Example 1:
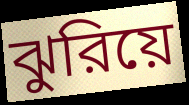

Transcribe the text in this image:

ঝুরিয়ে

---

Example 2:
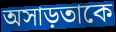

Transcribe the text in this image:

অসাড়তাকে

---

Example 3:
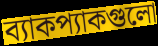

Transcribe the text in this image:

ব্যাকপ্যাকগুলো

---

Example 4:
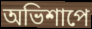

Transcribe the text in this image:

অভিশাপে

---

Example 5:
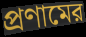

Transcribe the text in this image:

প্রণামের